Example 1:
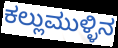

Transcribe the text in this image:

ಕಲ್ಲುಮುಳ್ಳಿನ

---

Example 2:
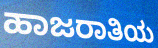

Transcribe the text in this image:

ಹಾಜರಾತಿಯ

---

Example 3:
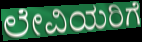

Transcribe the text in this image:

ಲೇವಿಯರಿಗೆ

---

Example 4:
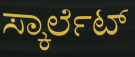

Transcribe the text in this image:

ಸ್ಕಾರ್ಲೆಟ್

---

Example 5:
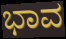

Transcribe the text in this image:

ಭಾವ